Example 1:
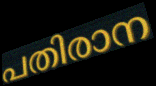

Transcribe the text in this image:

പതിരാന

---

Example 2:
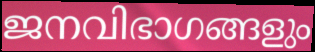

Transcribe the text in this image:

ജനവിഭാഗങ്ങളും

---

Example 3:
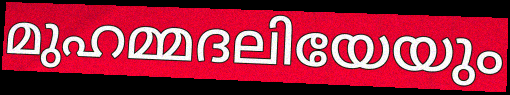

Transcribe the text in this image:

മുഹമ്മദലിയേയും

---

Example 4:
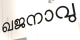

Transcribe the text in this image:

ഖജനാവു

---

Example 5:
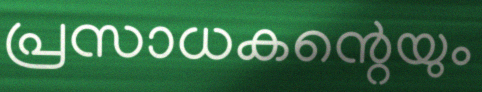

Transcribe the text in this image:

പ്രസാധകന്റെയും